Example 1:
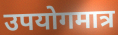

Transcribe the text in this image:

उपयोगमात्र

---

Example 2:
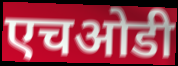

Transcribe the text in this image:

एचओडी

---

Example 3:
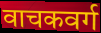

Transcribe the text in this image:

वाचकवर्ग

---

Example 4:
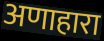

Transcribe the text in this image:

अणाहारा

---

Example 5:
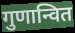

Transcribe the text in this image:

गुणान्वित